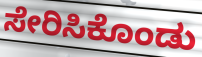
ಸೇರಿಸಿಕೊಂಡು